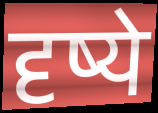
दृष्ये